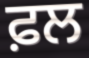
ਫ਼ਲ